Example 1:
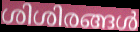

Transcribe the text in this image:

ശിശിരങ്ങൾ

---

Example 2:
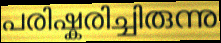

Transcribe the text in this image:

പരിഷ്കരിച്ചിരുന്നു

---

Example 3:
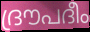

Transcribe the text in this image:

ദ്രൗപദീം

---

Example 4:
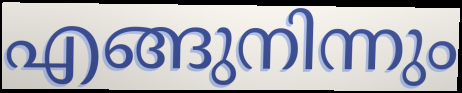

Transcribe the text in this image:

എങ്ങുനിന്നും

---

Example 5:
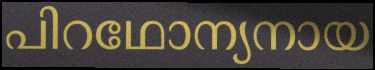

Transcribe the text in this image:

പിറഥോന്യനായ